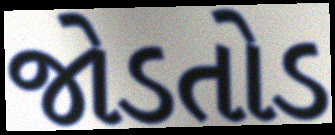
જોડતોડ